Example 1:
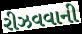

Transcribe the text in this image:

રીઝવવાની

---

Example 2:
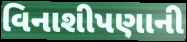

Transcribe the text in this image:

વિનાશીપણાની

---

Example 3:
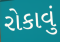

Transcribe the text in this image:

રોકાવું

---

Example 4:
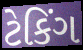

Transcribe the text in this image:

ટેકિંગ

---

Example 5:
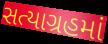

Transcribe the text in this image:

સત્યાગ્રહમાં